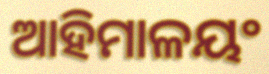
ଆହିମାଳୟଂ